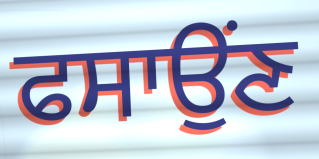
ਫਸਾਉਂਣ